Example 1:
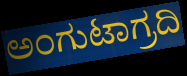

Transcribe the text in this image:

ಅಂಗುಟಾಗ್ರದಿ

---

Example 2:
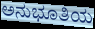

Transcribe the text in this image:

ಅನುಭೂತಿಯ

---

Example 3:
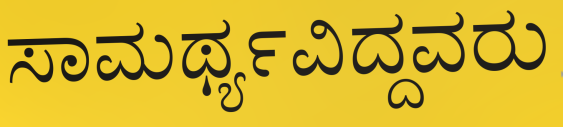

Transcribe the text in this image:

ಸಾಮರ್ಥ್ಯವಿದ್ದವರು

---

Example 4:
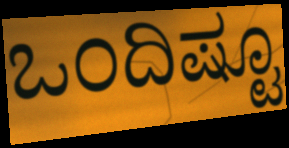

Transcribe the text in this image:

ಒಂದಿಷ್ಟೂ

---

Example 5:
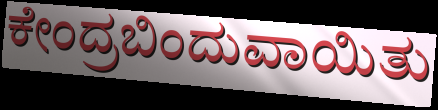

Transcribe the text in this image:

ಕೇಂದ್ರಬಿಂದುವಾಯಿತು